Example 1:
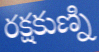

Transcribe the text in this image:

రక్షకుణ్ని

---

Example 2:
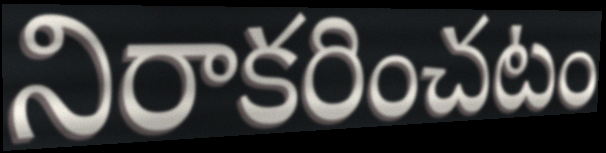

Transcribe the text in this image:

నిరాకరించటం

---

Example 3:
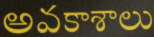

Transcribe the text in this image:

అవకాశాలు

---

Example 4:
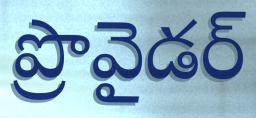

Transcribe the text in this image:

ప్రొవైడర్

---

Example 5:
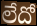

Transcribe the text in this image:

లేదో